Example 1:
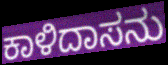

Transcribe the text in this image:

ಕಾಳಿದಾಸನು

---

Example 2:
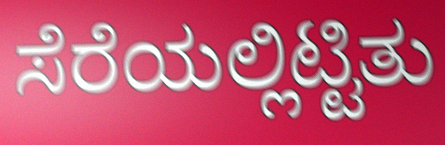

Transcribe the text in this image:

ಸೆರೆಯಲ್ಲಿಟ್ಟಿತು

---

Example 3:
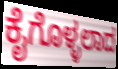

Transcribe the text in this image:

ಕೈಗೊಳ್ಳಲಾದ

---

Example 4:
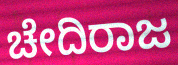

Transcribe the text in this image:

ಚೇದಿರಾಜ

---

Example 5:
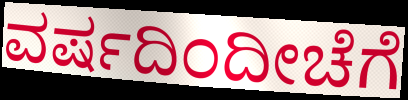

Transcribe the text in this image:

ವರ್ಷದಿಂದೀಚೆಗೆ